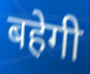
बहेगी